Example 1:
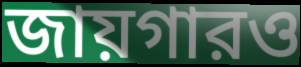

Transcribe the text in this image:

জায়গারও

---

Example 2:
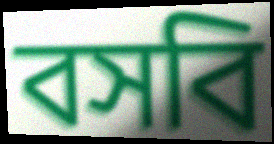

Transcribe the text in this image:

বসবি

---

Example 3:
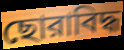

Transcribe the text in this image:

ছোরাবিদ্ধ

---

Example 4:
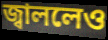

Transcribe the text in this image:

জ্বাললেও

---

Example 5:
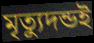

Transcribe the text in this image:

মৃত্যুদন্ডই